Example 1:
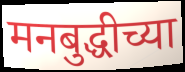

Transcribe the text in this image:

मनबुद्धीच्या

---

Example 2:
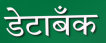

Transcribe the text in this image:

डेटाबँक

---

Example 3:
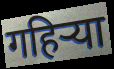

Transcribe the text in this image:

गहिऱ्या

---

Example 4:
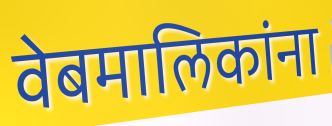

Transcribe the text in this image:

वेबमालिकांना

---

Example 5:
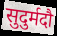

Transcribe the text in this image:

सुदुर्मदौ